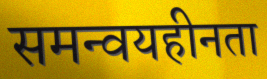
समन्वयहीनता